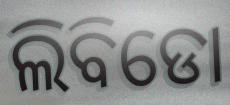
ଲିବିଡୋ